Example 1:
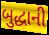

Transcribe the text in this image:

બુદ્ધાની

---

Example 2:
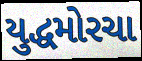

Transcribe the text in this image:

યુદ્ધમોરચા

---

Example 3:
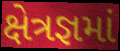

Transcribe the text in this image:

ક્ષેત્રજ્ઞમાં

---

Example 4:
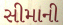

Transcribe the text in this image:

સીમાની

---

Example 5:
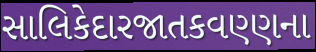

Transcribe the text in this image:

સાલિકેદારજાતકવણ્ણના